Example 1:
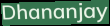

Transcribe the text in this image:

Dhananjay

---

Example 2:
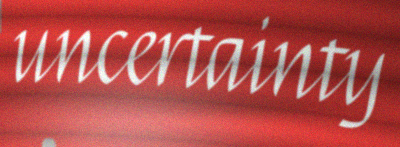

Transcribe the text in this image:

uncertainty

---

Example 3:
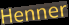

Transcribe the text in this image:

Henner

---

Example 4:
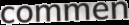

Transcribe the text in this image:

commen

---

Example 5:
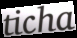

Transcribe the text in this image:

ticha